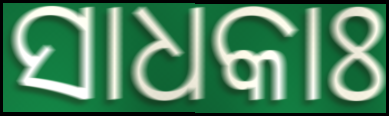
ସାଧକାଃ